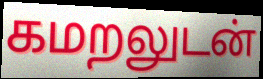
கமறலுடன்